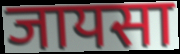
जायसा